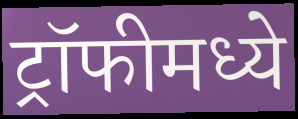
ट्रॉफीमध्ये